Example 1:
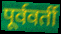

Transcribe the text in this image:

पूर्ववर्ती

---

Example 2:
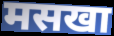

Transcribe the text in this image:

मसखा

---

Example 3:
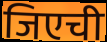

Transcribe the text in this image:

जिएची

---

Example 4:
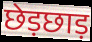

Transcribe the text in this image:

छेड़छाड़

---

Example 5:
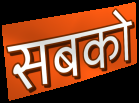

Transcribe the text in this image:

सबको